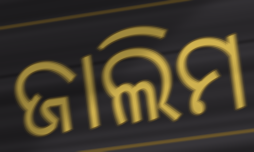
ଜାଲିମ